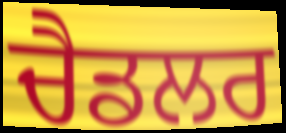
ਚੈਡਲਰ